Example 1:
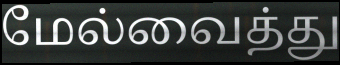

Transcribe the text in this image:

மேல்வைத்து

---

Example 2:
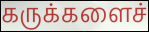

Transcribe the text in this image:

கருக்களைச்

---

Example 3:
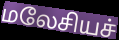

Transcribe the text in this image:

மலேசியச்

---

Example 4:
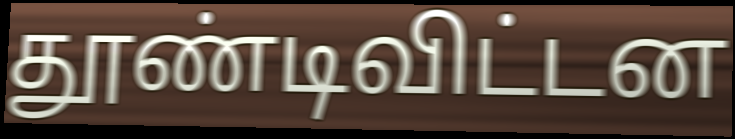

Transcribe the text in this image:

தூண்டிவிட்டன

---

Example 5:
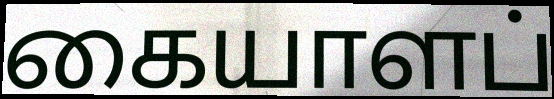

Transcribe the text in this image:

கையாளப்